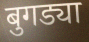
बुगड्या